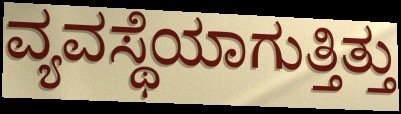
ವ್ಯವಸ್ಥೆಯಾಗುತ್ತಿತ್ತು